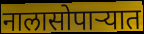
नालासोपाऱ्यात